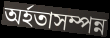
অৰ্হতাসম্পন্ন